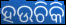
ହଉଚିକି